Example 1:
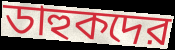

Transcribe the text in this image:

ডাহুকদের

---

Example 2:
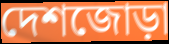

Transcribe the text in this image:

দেশজোড়া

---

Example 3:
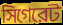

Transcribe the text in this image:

সিগেরেট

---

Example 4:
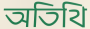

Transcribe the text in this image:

অতিথি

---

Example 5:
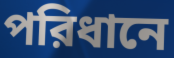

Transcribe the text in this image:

পরিধানে